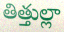
తిత్తుల్లా